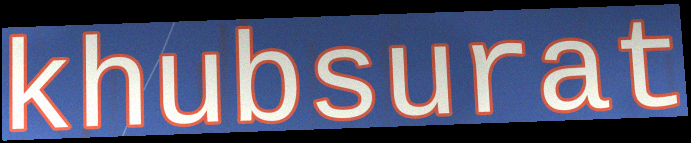
khubsurat